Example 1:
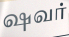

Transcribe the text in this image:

ஷவர்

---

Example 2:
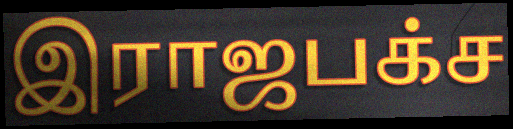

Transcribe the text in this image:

இராஜபக்ச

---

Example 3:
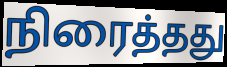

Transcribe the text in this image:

நிரைத்தது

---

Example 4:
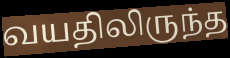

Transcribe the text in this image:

வயதிலிருந்த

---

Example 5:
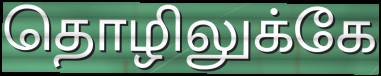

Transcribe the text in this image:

தொழிலுக்கே